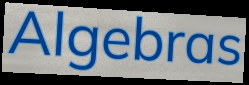
Algebras